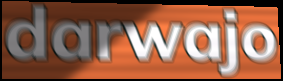
darwajo